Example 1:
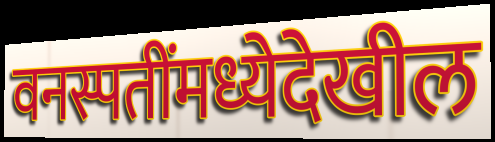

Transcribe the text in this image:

वनस्पतींमध्येदेखील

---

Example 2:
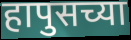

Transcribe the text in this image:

हापुसच्या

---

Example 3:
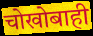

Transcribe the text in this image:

चोखोबाही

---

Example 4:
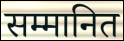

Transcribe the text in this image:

सम्मानित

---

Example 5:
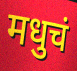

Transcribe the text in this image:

मधुचं